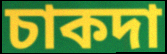
চাকদা